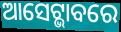
ଆସେଟ୍ଭାବରେ